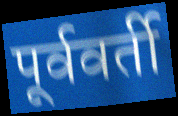
पूर्ववर्ती